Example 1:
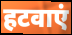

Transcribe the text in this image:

हटवाएं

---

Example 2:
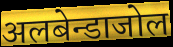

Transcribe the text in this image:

अलबेन्डाजोल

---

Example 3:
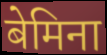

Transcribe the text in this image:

बेमिना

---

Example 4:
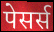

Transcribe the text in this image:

पेसर्स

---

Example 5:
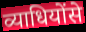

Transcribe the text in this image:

व्याधियोंसे